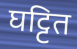
घट्टित